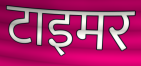
टाइमर